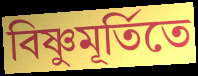
বিষ্ণুমূর্তিতে